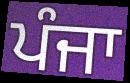
ਪੰਜਾ